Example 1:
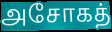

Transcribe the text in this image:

அசோகத்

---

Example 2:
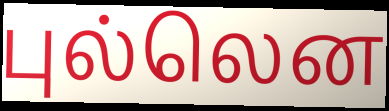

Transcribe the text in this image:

புல்லென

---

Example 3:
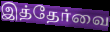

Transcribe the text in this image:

இத்தேர்வை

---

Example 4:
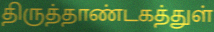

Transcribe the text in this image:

திருத்தாண்டகத்துள்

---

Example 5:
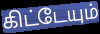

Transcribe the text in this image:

கிட்டேயும்